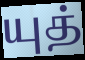
யுத்